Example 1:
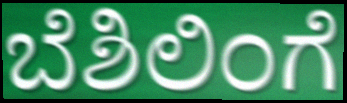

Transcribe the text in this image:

ಬೆಶಿಲಿಂಗೆ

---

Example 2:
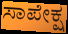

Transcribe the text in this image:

ಸಾಪೇಕ್ಷ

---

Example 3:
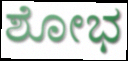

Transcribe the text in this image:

ಶೋಭ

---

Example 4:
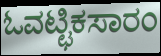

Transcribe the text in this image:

ಓವಟ್ಟಿಕಸಾರಂ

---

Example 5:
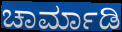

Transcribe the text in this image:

ಚಾರ್ಮಾಡಿ